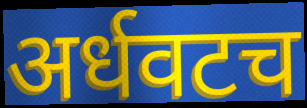
अर्धवटच